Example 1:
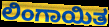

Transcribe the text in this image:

ಲಿಂಗಾಯಿತ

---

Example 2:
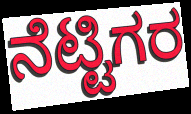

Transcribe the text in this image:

ನೆಟ್ಟಿಗರ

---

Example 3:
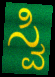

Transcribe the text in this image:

ಸ್ವಿ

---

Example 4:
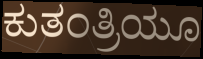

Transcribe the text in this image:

ಕುತಂತ್ರಿಯೂ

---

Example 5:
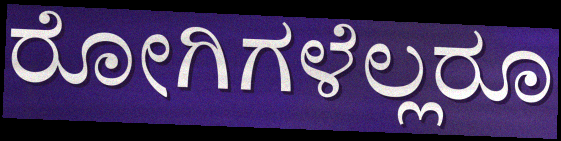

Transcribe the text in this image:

ರೋಗಿಗಳೆಲ್ಲರೂ